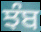
ਝੰਬ